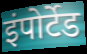
इंपोर्टेड